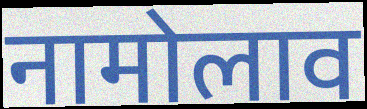
नामोलाव